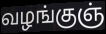
வழங்குஞ்